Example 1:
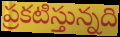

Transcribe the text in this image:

ప్రకటిస్తున్నది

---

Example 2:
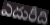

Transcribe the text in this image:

ఎదురీది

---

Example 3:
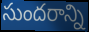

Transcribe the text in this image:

సుందరాన్ని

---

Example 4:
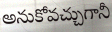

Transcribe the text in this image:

అనుకోవచ్చుగానీ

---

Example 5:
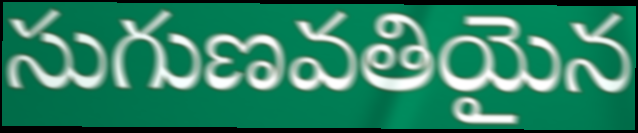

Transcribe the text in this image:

సుగుణవతియైన